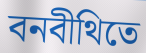
বনবীথিতে